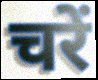
चरें